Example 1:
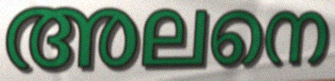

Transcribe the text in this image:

അലനെ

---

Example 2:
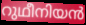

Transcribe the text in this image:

റുഥീനിയൻ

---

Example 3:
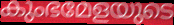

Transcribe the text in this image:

കുംഭമേളയുടെ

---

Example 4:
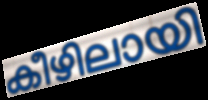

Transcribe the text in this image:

കീഴിലായി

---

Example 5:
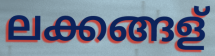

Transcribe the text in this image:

ലക്കങ്ങള്